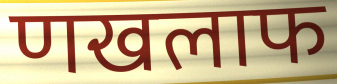
णखलाफ